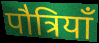
पौत्रियाँ